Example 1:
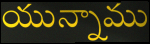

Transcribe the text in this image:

యున్నాము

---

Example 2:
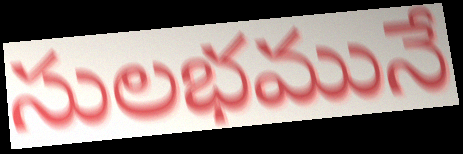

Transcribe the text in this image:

సులభమునే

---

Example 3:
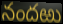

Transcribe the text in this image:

నందఱు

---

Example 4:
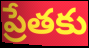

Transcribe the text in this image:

ప్రేతకు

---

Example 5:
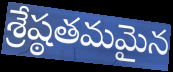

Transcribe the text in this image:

శ్రేష్ఠతమమైన